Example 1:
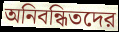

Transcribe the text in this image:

অনিবন্ধিতদের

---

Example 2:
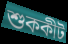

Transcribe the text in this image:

শুককীট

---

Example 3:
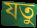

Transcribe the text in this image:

যতু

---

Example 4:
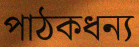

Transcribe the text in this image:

পাঠকধন্য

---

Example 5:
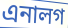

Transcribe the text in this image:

এনালগ